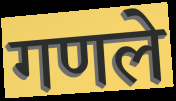
गणले